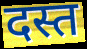
दस्त